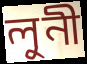
লুনী